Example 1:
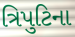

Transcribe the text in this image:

ત્રિપુટિના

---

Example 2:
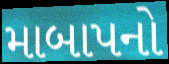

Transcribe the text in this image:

માબાપનો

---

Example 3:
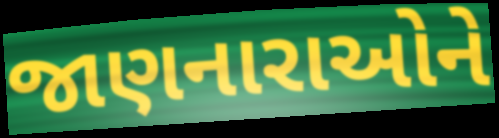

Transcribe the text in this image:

જાણનારાઓને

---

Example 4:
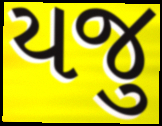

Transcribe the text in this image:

યજુ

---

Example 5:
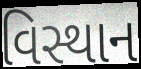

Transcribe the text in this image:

વિસ્થાન